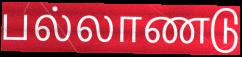
பல்லாணடு